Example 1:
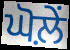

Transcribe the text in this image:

ਘੋਲ਼ੇਂ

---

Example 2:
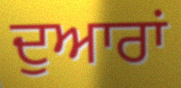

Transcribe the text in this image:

ਦੁਆਰਾਂ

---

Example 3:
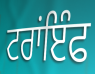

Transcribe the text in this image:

ਟਰਾਂਇੰਫ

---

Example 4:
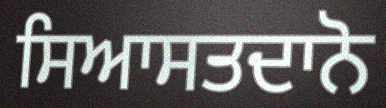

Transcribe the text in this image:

ਸਿਆਸਤਦਾਨੋ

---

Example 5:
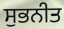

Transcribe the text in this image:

ਸੁਭਨੀਤ